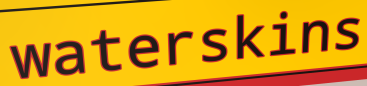
waterskins